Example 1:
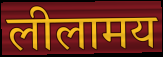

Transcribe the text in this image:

लीलामय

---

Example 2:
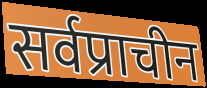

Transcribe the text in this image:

सर्वप्राचीन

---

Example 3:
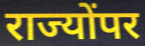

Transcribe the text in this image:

राज्योंपर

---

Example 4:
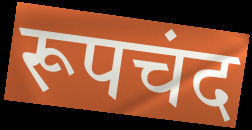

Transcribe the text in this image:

रूपचंद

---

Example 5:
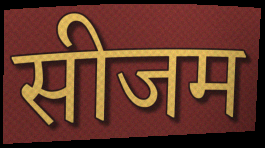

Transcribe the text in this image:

सीजम